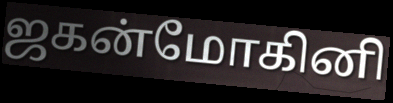
ஜகன்மோகினி